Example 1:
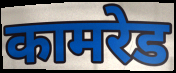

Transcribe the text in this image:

कामरेड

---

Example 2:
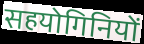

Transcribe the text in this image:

सहयोगिनियों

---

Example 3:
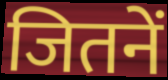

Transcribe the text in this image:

जितनें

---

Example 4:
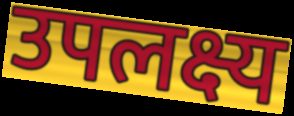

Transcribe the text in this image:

उपलक्ष्य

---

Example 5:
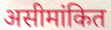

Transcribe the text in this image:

असीमांकित